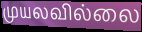
முயலவில்லை